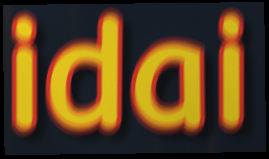
idai